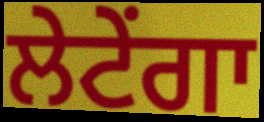
ਲੇਟੇਂਗਾ